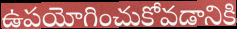
ఉపయోగించుకోవడానికి